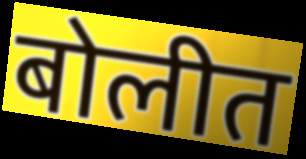
बोलीत